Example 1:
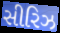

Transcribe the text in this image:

સીરિઝ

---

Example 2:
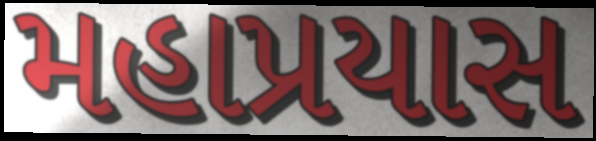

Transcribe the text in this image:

મહાપ્રયાસ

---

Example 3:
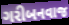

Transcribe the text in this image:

ગરીબનવાજ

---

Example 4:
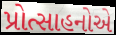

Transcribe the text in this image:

પ્રોત્સાહનોએ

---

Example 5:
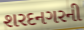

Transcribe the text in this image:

શરદનગરની